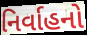
નિર્વાહનો